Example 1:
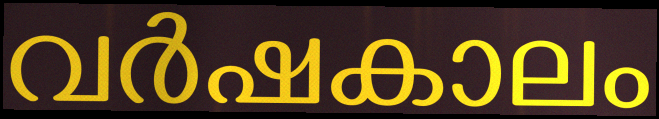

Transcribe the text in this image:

വർഷകാലം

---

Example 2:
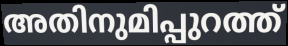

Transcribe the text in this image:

അതിനുമിപ്പുറത്ത്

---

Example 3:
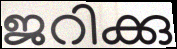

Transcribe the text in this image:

ജറിക്കു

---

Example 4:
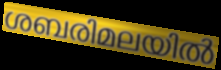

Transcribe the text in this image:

ശബരിമലയിൽ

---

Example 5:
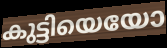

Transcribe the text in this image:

കുട്ടിയെയോ